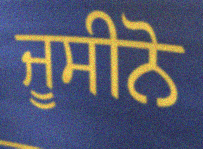
ਜੂਸੀਨੋ